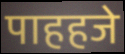
पाहहजे